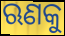
ଋଣକୁ